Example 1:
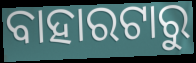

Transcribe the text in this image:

ବାହାରଟାରୁ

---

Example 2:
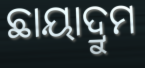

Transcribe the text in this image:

ଛାୟାଦ୍ରୁମ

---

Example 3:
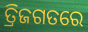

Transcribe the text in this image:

ତ୍ରିଜଗତରେ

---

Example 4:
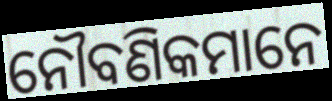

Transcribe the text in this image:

ନୌବଣିକମାନେ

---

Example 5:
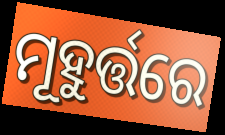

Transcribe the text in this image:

ମୂହୁର୍ତ୍ତରେ